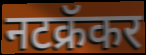
नटक्रॅकर